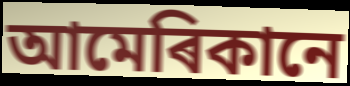
আমেৰিকানে